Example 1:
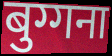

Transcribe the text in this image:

बुग्गना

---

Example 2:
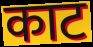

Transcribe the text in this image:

काट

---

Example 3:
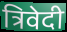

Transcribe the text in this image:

त्रिवेदी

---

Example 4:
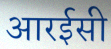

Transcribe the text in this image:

आरईसी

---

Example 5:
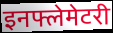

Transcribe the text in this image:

इनफ्लेमेटरी